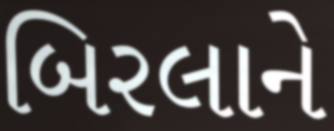
બિરલાને